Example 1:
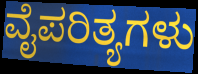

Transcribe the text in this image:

ವೈಪರಿತ್ಯಗಳು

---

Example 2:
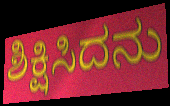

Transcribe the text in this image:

ಶಿಕ್ಷಿಸಿದನು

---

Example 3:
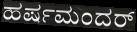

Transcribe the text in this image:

ಹರ್ಷಮಂದರ್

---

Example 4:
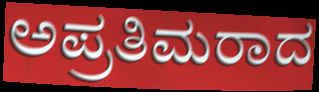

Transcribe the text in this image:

ಅಪ್ರತಿಮರಾದ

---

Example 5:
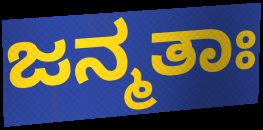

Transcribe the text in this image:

ಜನ್ಮತಾಃ